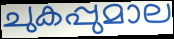
ചുകപ്പുമാല